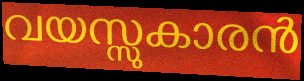
വയസ്സുകാരൻ